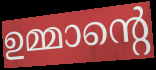
ഉമ്മാന്റെ